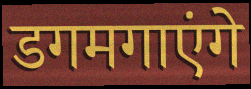
डगमगाएंगे